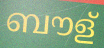
ബൗള്